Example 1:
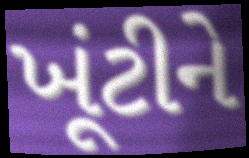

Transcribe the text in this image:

ખૂંટીને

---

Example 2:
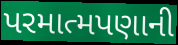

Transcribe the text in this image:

પરમાત્મપણાની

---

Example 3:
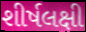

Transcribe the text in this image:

શીર્ષલક્ષી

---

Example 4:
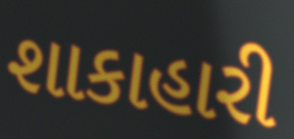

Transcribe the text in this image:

શાકાહારી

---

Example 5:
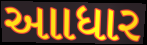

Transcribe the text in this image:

આાધાર